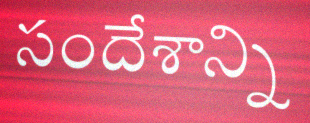
సందేశాన్ని